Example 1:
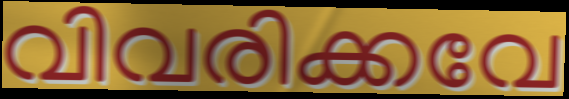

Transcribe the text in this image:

വിവരിക്കവേ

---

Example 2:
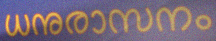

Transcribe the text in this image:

ധനുരാസനം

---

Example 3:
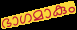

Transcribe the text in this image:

ഭാഗമാകും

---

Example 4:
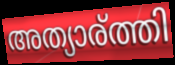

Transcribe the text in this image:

അത്യാര്ത്തി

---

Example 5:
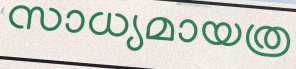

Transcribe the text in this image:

സാധ്യമായത്ര